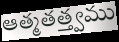
ఆత్మతత్త్వము